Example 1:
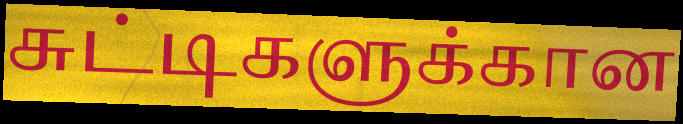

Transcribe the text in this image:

சுட்டிகளுக்கான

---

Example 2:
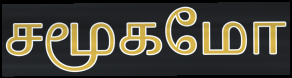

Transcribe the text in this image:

சமூகமோ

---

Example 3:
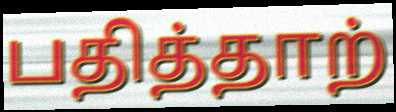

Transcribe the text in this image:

பதித்தாற்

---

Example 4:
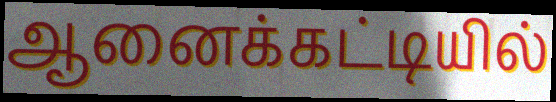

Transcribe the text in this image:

ஆனைக்கட்டியில்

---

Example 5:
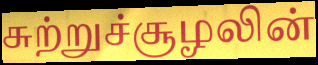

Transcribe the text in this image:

சுற்றுச்சூழலின்